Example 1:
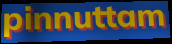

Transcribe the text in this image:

pinnuttam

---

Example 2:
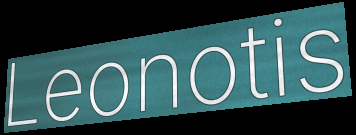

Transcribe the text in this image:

Leonotis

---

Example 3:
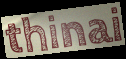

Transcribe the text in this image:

thinai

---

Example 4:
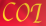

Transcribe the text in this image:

COI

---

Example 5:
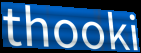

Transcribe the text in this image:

thooki